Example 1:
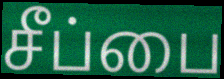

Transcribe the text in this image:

சீப்பை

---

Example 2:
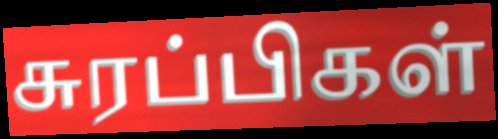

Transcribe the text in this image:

சுரப்பிகள்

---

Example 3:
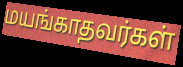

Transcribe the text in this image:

மயங்காதவர்கள்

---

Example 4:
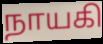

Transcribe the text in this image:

நாயகி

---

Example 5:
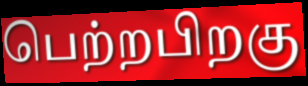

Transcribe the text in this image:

பெற்றபிறகு